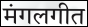
मंगलगीत